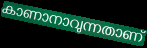
കാണാനാവുന്നതാണ്